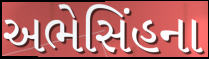
અભેસિંહના